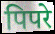
पिपरे